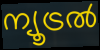
ന്യൂട്രൽ